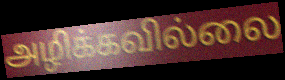
அழிக்கவில்லை